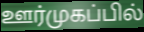
ஊர்முகப்பில்